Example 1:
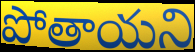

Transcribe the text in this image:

పోతాయని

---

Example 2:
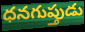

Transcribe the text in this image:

ధనగుప్తుడు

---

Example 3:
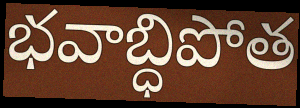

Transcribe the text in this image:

భవాబ్ధిపోత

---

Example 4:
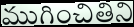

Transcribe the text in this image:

ముగించితిని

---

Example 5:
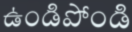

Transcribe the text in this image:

ఉండిపోండి